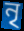
নৃ